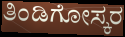
ತಿಂಡಿಗೋಸ್ಕರ